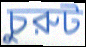
চুরুট